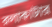
রলাকাটার